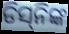
ଡିସ୍‌ନିଙ୍କ